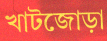
খাটজোড়া